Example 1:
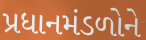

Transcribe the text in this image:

પ્રધાનમંડળોને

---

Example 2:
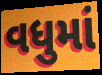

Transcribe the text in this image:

વધુમાં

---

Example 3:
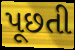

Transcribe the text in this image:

પૂછતી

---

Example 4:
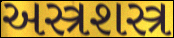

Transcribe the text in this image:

અસ્ત્રશસ્ત્ર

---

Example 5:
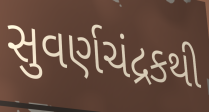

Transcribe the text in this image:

સુવર્ણચંદ્રકથી